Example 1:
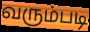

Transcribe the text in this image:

வரும்படி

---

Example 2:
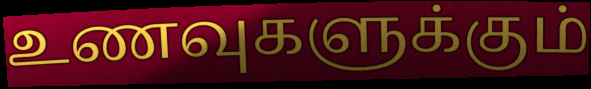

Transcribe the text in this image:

உணவுகளுக்கும்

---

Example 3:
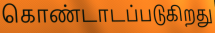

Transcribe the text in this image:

கொண்டாடப்படுகிறது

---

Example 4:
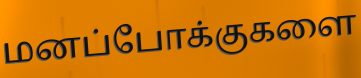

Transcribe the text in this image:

மனப்போக்குகளை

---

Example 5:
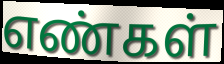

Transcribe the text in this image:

எண்கள்